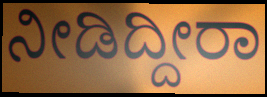
ನೀಡಿದ್ದೀರಾ